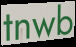
tnwb